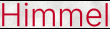
Himmel